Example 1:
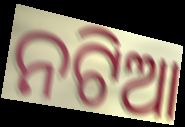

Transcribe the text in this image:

ନଟିଆ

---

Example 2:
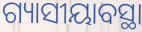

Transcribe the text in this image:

ଗ୍ୟାସୀୟାବସ୍ଥା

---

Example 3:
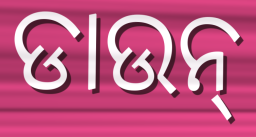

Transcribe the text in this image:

ଡାଉନ୍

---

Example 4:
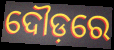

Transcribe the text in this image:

ଦୌଡ଼ରେ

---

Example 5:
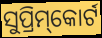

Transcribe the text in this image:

ସୁପ୍ରିମ୍‌କୋର୍ଟ